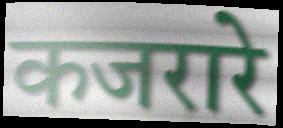
कजरारे